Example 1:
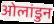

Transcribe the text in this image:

ओलांडुन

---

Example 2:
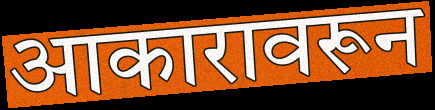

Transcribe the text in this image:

आकारावरून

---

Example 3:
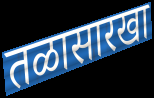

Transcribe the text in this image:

तळासारखा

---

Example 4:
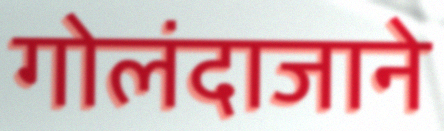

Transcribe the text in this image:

गोलंदाजाने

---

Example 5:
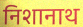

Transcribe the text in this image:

निशानाथ